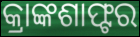
କ୍ରାଙ୍କଶାଫ୍ଟର